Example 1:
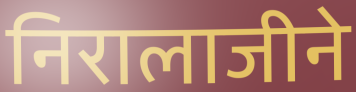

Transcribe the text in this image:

निरालाजीने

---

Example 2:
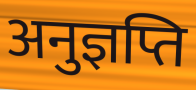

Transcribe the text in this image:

अनुज्ञप्ति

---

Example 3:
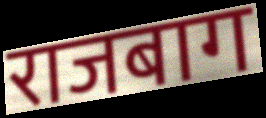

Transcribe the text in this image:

राजबाग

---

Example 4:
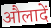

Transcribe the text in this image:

औलादें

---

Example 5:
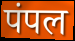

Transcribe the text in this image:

पंपल